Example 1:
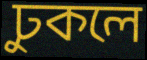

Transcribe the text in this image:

ঢুকলে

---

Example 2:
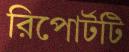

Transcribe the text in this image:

রিপোর্টটি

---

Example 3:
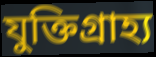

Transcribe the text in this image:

যুক্তিগ্রাহ্য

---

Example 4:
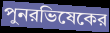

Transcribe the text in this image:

পুনরভিষেকের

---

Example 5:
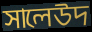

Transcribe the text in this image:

সালেউদ